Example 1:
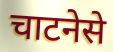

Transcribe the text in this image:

चाटनेसे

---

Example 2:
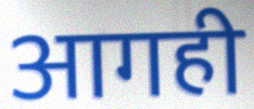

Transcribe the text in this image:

आगही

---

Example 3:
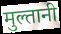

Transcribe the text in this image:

मुल्‍तानी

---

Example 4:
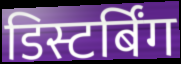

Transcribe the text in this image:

डिस्टर्बिंग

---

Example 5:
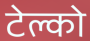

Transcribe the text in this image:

टेल्को